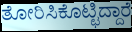
ತೋರಿಸಿಕೊಟ್ಟಿದ್ದಾರೆ